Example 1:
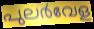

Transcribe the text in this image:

പുലർവേള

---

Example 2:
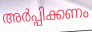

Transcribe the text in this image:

അർപ്പിക്കണം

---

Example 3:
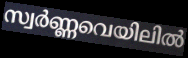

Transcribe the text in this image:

സ്വർണ്ണവെയിലിൽ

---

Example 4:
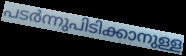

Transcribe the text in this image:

പടർന്നുപിടിക്കാനുള്ള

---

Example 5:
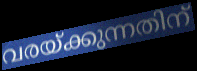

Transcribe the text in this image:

വരയ്ക്കുന്നതിന്